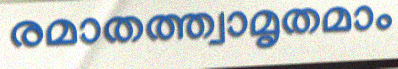
രമാതത്ത്വാമൃതമാം